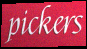
pickers